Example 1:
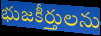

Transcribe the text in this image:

భుజకీర్తులను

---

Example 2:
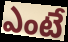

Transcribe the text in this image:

ఎంటే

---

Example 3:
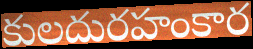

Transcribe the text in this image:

కులదురహంకార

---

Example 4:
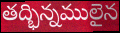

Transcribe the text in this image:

తద్భిన్నములైన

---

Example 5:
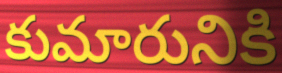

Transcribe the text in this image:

కుమారునికి